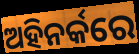
ଅହିନର୍କରେ